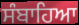
ਸੰਬਾਹਿਆ